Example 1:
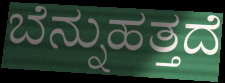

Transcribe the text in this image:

ಬೆನ್ನುಹತ್ತದೆ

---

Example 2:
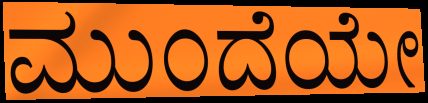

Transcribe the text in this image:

ಮುಂದೆಯೇ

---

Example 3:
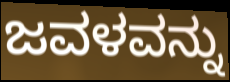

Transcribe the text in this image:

ಜವಳವನ್ನು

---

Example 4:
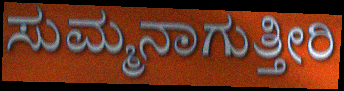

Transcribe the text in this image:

ಸುಮ್ಮನಾಗುತ್ತೀರಿ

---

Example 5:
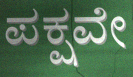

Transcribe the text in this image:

ಪಕ್ಷವೇ